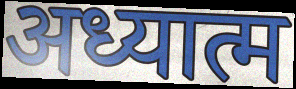
अध्यात्म